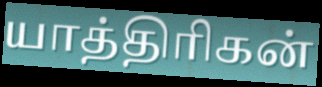
யாத்திரிகன்